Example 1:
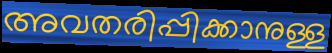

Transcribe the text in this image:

അവതരിപ്പിക്കാനുള്ള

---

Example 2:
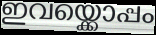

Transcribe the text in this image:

ഇവയ്ക്കൊപ്പം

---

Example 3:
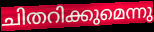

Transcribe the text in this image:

ചിതറിക്കുമെന്നു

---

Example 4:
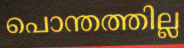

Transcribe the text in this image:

പൊന്തത്തില്ല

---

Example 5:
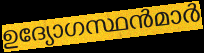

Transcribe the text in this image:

ഉദ്യോഗസ്ഥൻമാർ